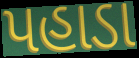
પહાડા